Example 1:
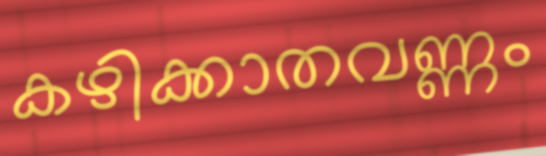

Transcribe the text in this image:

കഴിക്കാതവണ്ണം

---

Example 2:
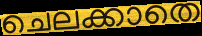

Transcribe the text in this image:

ചെലക്കാതെ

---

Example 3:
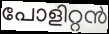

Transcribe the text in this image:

പോളിറ്റൻ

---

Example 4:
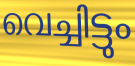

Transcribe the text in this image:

വെച്ചിട്ടും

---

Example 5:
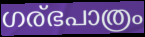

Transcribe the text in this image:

ഗര്ഭപാത്രം